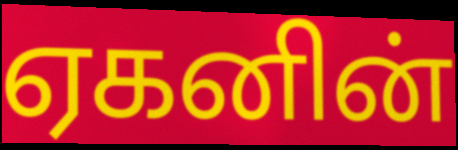
ஏகனின்